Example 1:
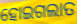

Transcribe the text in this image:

ହୋଇଗଲାତ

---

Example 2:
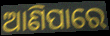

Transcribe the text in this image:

ଆଣିପାରେ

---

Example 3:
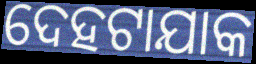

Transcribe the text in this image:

ଦେହଟାଯାକ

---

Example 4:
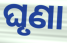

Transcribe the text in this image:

ଘୃଣା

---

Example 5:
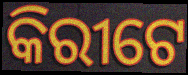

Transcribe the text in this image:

କିରୀଟେ